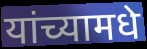
यांच्यामधे